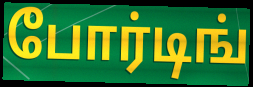
போர்டிங்